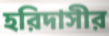
হরিদাসীর